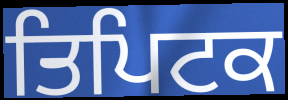
ਤਿਪਿਟਕ